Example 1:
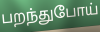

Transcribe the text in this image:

பறந்துபோய்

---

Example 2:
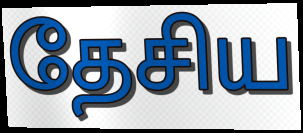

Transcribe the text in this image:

தேசிய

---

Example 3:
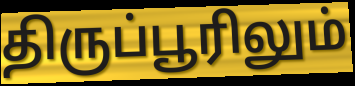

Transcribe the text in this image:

திருப்பூரிலும்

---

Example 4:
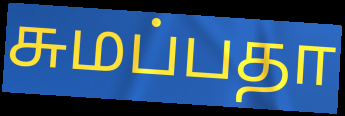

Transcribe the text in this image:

சுமப்பதா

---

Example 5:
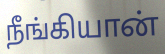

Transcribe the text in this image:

நீங்கியான்